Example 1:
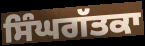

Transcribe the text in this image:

ਸਿੰਘਗੱਤਕਾ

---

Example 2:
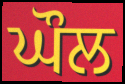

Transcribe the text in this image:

ਘੌਲ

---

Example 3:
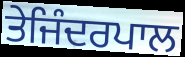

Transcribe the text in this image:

ਤੇਜਿੰਦਰਪਾਲ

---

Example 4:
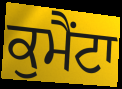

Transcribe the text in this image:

ਕੁਮੈਂਟਾ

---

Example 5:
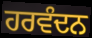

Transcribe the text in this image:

ਹਰਵੰਦਨ